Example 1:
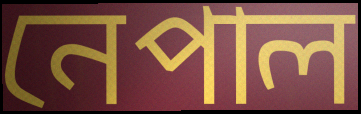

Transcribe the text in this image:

নেপাল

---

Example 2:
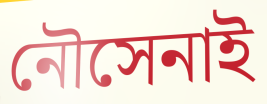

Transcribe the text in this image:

নৌসেনাই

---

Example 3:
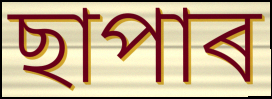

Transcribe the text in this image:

ছাপাৰ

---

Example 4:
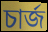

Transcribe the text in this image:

চাৰ্জ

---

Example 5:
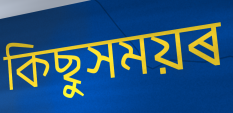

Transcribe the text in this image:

কিছুসময়ৰ